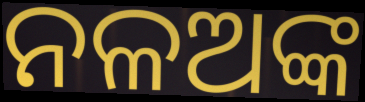
ନଳଅଙ୍କ